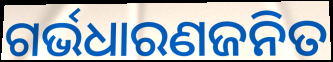
ଗର୍ଭଧାରଣଜନିତ